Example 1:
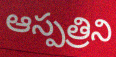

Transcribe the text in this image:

ఆస్పత్రిని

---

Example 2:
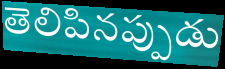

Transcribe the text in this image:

తెలిపినప్పుడు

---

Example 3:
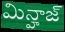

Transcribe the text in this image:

మిన్హాజ్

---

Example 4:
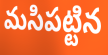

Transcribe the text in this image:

మసిపట్టిన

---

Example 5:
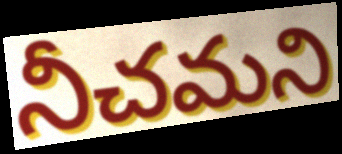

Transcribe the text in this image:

నీచమని